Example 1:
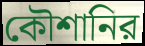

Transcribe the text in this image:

কৌশানির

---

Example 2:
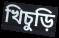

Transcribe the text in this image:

খিচুড়ি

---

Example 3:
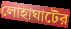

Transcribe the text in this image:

লোহাঘাটের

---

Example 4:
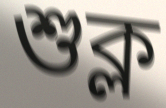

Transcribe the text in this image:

শুক্ল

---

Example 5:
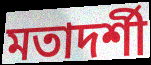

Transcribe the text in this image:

মতাদর্শী